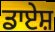
ਡਾਏਸ਼